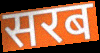
सरब